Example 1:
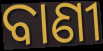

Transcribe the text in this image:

ବାଣୀ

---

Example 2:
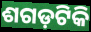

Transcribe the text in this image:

ଶଗଡ଼ଟିକି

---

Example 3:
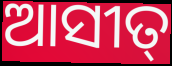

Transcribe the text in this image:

ଆସୀତ୍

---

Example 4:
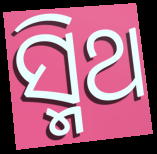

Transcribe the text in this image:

ସ୍ମିଥ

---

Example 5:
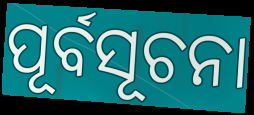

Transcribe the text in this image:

ପୂର୍ବସୂଚନା